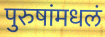
पुरुषांमधलं